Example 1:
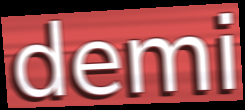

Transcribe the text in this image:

demi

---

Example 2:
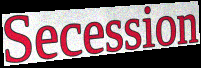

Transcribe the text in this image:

Secession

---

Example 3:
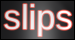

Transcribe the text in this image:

slips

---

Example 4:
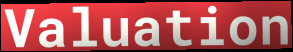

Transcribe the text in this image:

Valuation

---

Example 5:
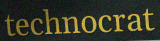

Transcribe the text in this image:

technocrat